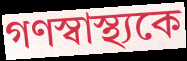
গণস্বাস্থ্যকে